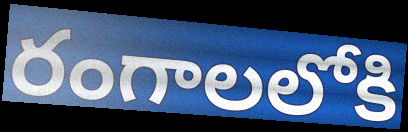
రంగాలలోకి